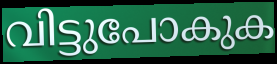
വിട്ടുപോകുക